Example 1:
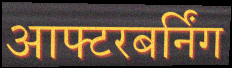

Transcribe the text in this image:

आफ्टरबर्निंग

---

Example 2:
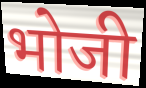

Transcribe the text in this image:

भोजी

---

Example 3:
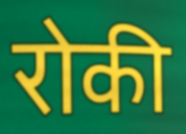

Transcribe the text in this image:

रोकी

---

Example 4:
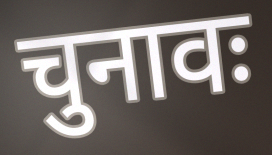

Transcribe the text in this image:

चुनावः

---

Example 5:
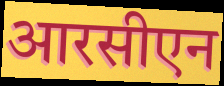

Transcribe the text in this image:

आरसीएन